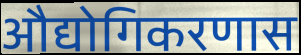
औद्योगिकरणास